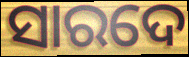
ସାରଦେ